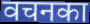
वचनका